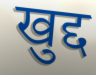
खुद्द